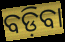
ବଡ଼ିବା